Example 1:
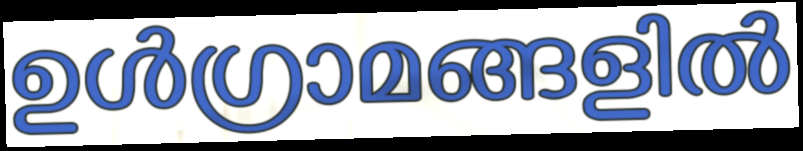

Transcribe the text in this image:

ഉൾഗ്രാമങ്ങളിൽ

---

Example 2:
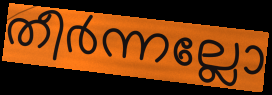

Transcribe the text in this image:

തീർന്നല്ലോ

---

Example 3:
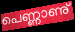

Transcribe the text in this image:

പെണ്ണാണു്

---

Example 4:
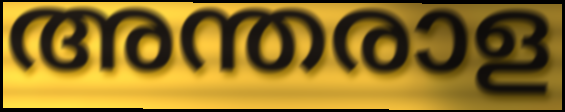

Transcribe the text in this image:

അന്തരാള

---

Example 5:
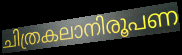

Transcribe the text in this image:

ചിത്രകലാനിരൂപണ